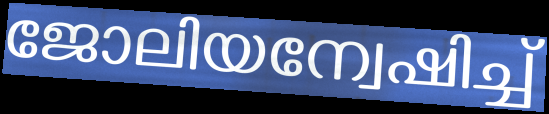
ജോലിയന്വേഷിച്ച്